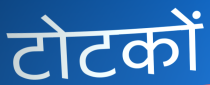
टोटकों